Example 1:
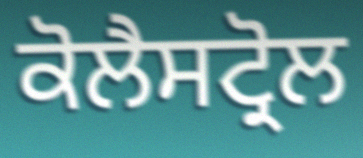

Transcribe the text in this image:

ਕੋਲੈਸਟ੍ਰੋਲ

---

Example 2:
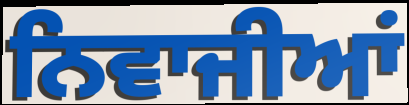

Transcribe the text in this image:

ਨਿਵਾਜੀਆਂ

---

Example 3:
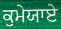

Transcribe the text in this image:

ਕੁਮੇਯਾਏ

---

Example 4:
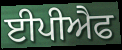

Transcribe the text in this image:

ਈਪੀਐਫ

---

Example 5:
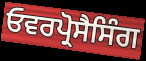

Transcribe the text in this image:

ਓਵਰਪ੍ਰੋਸੈਸਿੰਗ